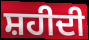
ਸ਼ਹੀਦੀ